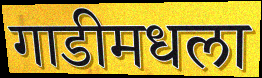
गाडीमधला